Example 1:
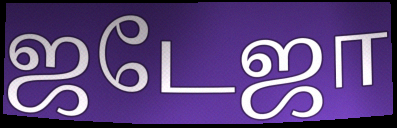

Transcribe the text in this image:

ஜடேஜா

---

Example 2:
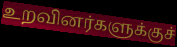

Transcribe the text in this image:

உறவினர்களுக்குச்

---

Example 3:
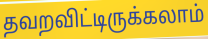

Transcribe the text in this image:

தவறவிட்டிருக்கலாம்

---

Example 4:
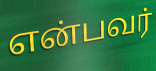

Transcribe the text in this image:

என்பவர்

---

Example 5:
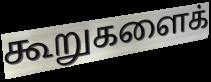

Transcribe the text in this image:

கூறுகளைக்